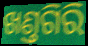
ଖଣ୍ତଗିରି